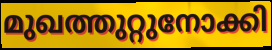
മുഖത്തുറ്റുനോക്കി